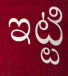
ఇట్టి